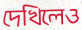
দেখিলেও